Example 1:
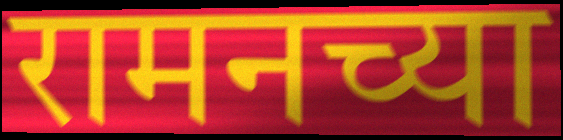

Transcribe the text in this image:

रामनच्या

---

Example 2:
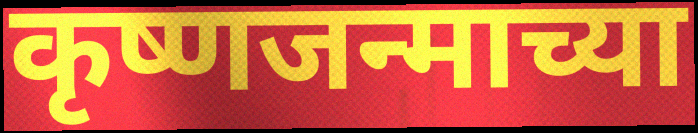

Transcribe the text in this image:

कृष्णजन्माच्या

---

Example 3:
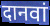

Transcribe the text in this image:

दानवां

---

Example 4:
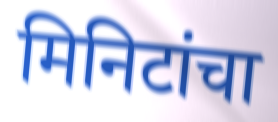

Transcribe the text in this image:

मिनिटांचा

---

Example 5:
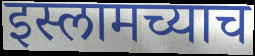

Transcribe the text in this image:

इस्लामच्याच